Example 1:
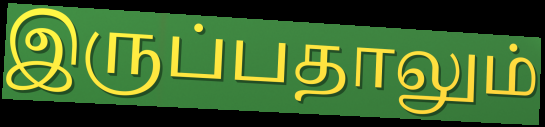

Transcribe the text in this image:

இருப்பதாலும்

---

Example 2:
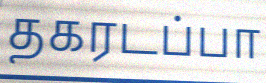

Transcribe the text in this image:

தகரடப்பா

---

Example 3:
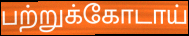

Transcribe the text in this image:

பற்றுக்கோடாய்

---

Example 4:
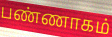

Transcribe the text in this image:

பண்ணாகம்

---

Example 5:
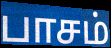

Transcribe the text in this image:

பாசம்